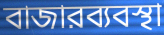
বাজারব্যবস্থা